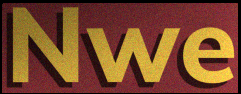
Nwe